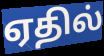
ஏதில்